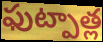
ఫుట్పాత్ల